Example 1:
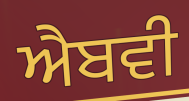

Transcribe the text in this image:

ਐਬਵੀ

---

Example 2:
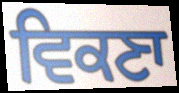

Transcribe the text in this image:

ਵਿਕਣਾ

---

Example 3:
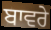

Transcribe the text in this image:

ਬਾਵਰੇ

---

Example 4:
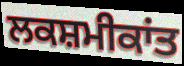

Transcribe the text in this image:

ਲਕਸ਼ਮੀਕਾਂਤ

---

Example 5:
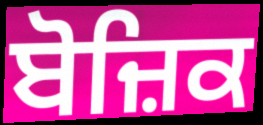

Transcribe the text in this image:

ਬੋਜ਼ਿਕ